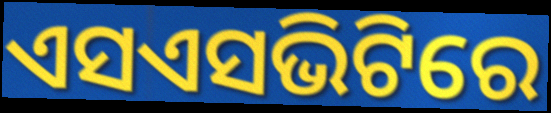
ଏସଏସଭିଟିରେ